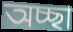
অচ্ছা